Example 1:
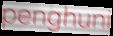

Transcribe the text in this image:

penghuni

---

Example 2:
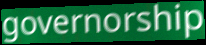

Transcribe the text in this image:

governorship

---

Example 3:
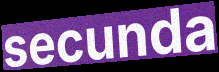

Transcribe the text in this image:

secunda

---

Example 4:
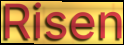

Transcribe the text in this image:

Risen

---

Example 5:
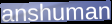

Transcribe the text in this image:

anshuman